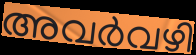
അവർവഴി